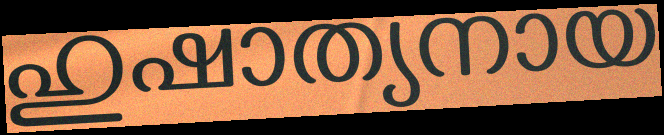
ഹുഷാത്യനായ